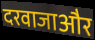
दरवाजाऔर